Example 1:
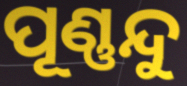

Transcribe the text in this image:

ପୂଣ୍ଣନ୍ଦୁ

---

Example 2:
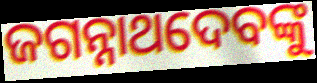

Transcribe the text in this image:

ଜଗନ୍ନାଥଦେବଙ୍କୁ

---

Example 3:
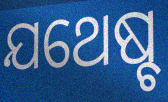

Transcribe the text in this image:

ଯଥେଷ୍ଚ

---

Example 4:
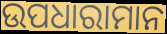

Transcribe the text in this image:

ଉପଧାରାମାନ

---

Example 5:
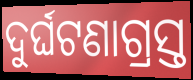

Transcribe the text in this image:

ଦୁର୍ଘଟଣାଗ୍ରସ୍ତ